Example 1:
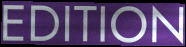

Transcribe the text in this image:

EDITION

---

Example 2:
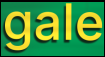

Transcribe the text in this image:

gale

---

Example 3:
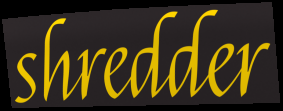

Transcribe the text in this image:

shredder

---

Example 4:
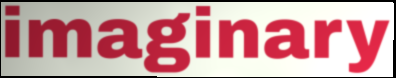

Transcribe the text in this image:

imaginary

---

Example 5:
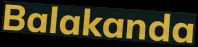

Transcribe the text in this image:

Balakanda